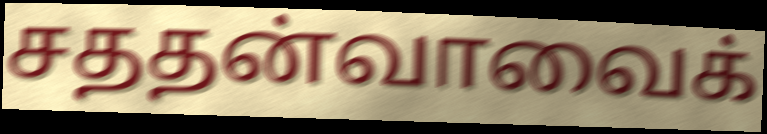
சததன்வாவைக்